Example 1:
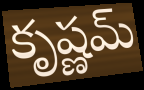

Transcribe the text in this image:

కృష్ణమ్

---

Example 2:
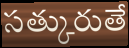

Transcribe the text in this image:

సత్కురుతే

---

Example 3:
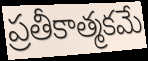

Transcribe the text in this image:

ప్రతీకాత్మకమే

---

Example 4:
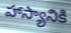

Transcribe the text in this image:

హాస్యానికి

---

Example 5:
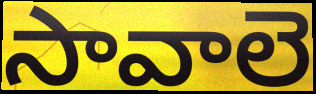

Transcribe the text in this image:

సావాలె